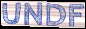
UNDF